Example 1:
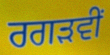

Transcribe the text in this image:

ਰਗੜਵੀਂ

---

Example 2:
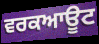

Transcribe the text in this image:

ਵਰਕਆਊਟ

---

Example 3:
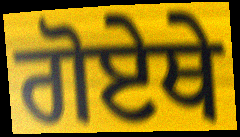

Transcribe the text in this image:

ਗੋਏਥੇ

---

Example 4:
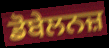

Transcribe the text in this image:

ਡੋਬੇਲਨਜ਼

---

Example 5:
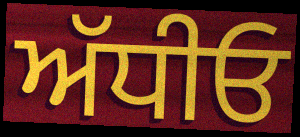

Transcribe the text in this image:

ਅੱਧੀਓ